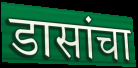
डासांचा